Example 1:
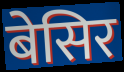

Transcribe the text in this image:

बेसिर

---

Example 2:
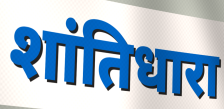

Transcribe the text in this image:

शांतिधारा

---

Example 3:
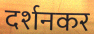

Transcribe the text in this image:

दर्शनकर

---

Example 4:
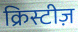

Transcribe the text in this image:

क्रिस्टीज़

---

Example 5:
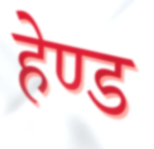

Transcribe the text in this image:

हेण्ड